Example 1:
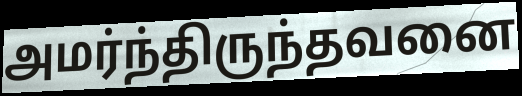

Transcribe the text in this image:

அமர்ந்திருந்தவனை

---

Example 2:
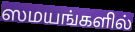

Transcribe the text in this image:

ஸமயங்களில்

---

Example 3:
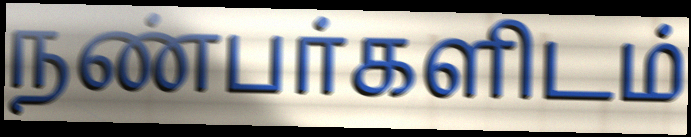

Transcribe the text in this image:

நண்பர்களிடம்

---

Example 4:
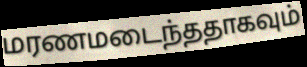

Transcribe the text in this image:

மரணமடைந்ததாகவும்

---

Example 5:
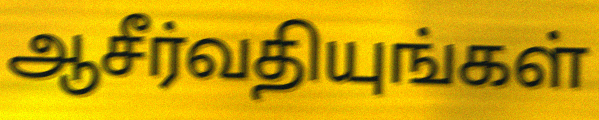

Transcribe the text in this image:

ஆசீர்வதியுங்கள்